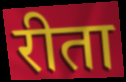
रीता